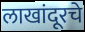
लाखांदूरचे